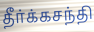
தீர்க்கசந்தி